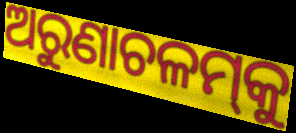
ଅରୁଣାଚଳମ୍‌କୁ